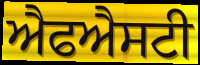
ਐਫਐਸਟੀ